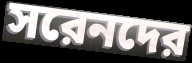
সরেনদের